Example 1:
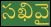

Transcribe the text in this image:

సఖివై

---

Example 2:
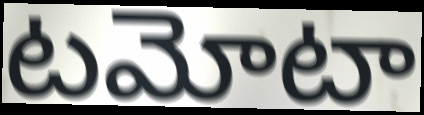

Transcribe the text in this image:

టమోటా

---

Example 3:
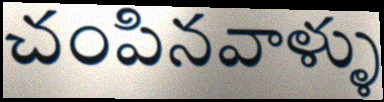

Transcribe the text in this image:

చంపినవాళ్ళు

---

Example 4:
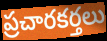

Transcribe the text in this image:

ప్రచారకర్తలు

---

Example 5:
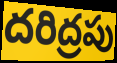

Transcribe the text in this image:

దరిద్రపు